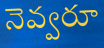
నెవ్వరూ